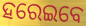
ହରେଇବେ